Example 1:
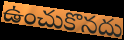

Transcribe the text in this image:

ఉంచుకొనదు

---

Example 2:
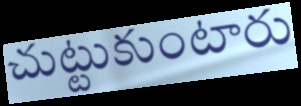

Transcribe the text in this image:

చుట్టుకుంటారు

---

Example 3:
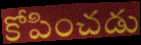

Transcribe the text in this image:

కోపించడు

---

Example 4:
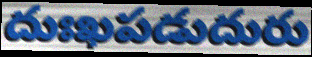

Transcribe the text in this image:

దుఃఖపడుదురు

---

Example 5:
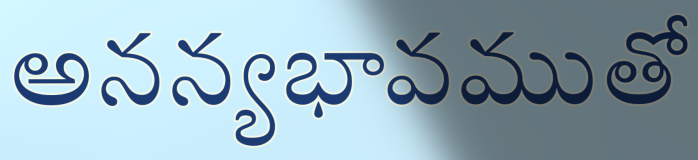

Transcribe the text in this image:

అనన్యభావముతో